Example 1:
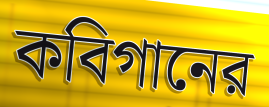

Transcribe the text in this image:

কবিগানের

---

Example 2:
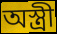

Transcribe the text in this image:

অস্ত্রী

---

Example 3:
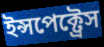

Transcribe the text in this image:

ইন্সপেক্ট্রেস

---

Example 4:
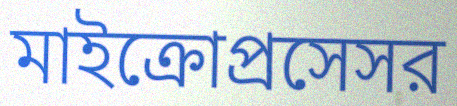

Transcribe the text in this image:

মাইক্রোপ্রসেসর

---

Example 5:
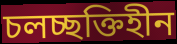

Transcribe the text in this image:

চলচ্ছক্তিহীন